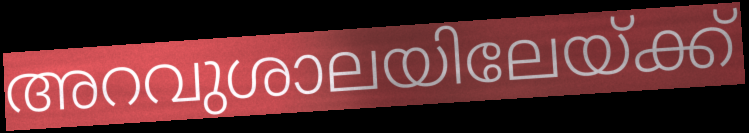
അറവുശാലയിലേയ്ക്ക്